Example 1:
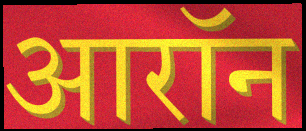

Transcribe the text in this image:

आरॉन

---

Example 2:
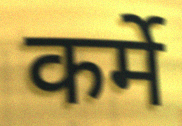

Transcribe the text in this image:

कर्मे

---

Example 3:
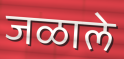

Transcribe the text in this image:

जळाले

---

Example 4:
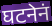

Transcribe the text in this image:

घटनेनं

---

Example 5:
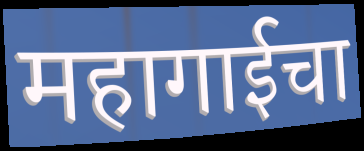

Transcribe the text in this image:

महागाईचा